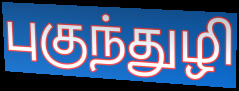
புகுந்துழி